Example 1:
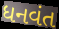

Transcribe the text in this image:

ધનવંત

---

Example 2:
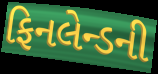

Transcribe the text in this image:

ફિનલેન્ડની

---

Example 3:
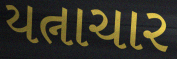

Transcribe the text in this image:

યત્નાચાર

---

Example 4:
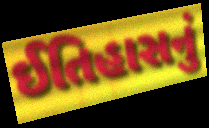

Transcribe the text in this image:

ઈતિહાસનું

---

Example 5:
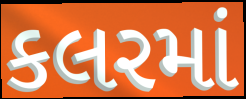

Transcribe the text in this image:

કલરમાં